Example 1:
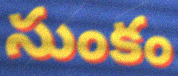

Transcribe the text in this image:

సుంకం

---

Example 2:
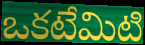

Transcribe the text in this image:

ఒకటేమిటి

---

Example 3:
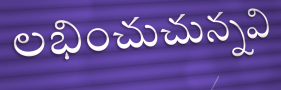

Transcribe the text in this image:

లభించుచున్నవి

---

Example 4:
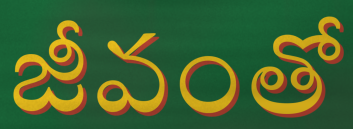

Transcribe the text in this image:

జీవంతో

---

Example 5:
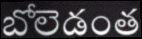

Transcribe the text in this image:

బోలెడంత